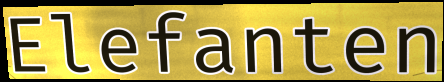
Elefanten